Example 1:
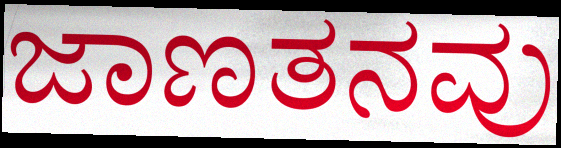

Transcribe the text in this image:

ಜಾಣತನವು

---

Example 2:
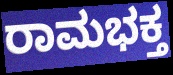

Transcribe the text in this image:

ರಾಮಭಕ್ತ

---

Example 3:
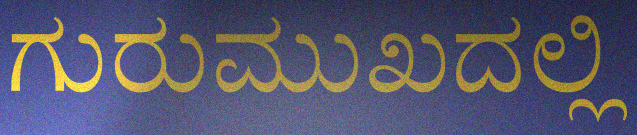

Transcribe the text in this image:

ಗುರುಮುಖದಲ್ಲಿ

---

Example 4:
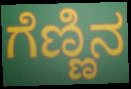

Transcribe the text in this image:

ಗೆಣ್ಣಿನ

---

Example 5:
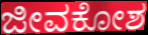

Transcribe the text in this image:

ಜೀವಕೋಶ